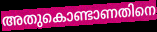
അതുകൊണ്ടാണതിനെ